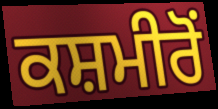
ਕਸ਼ਮੀਰੋਂ